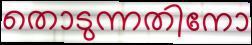
തൊടുന്നതിനോ